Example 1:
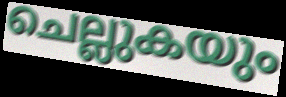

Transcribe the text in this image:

ചെല്ലുകയും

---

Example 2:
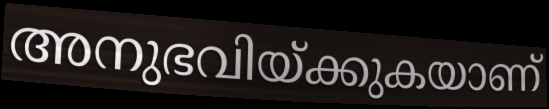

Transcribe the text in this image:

അനുഭവിയ്ക്കുകയാണ്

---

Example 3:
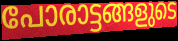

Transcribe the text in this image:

പോരാട്ടങ്ങളുടെ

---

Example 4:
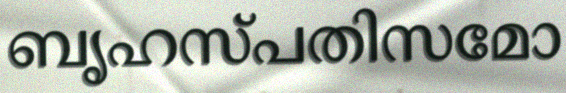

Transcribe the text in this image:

ബൃഹസ്പതിസമോ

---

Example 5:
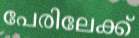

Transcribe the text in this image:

പേരിലേക്ക്